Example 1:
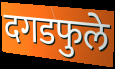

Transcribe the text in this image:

दगडफुले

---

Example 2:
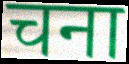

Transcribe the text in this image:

चना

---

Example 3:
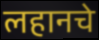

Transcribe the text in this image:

लहानचे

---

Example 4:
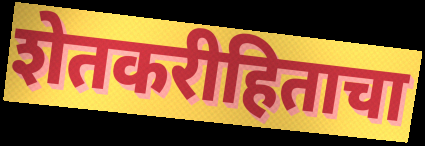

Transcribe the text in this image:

शेतकरीहिताचा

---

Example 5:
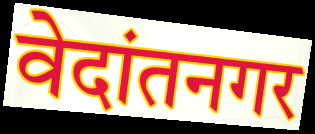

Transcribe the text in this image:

वेदांतनगर